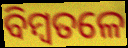
ବିମ୍ବତଳେ